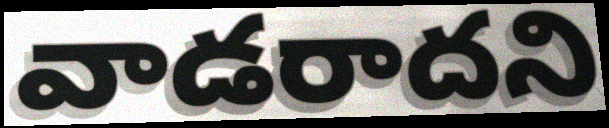
వాడరాదని